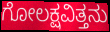
ಗೋಲಕ್ಷವಿತ್ತನು